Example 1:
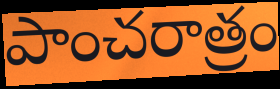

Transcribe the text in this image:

పాంచరాత్రం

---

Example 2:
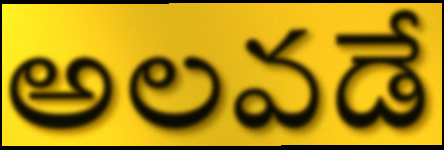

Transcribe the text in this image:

అలవడే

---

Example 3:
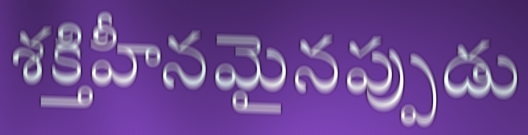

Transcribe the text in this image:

శక్తిహీనమైనప్పుడు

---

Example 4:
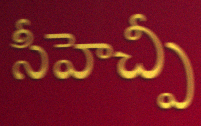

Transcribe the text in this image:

సీహెచ్పీ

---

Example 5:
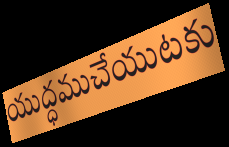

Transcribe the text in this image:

యుద్ధముచేయుటకు